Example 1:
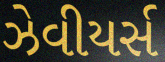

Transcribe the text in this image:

ઝેવીયર્સ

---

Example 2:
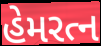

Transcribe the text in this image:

હેમરત્ન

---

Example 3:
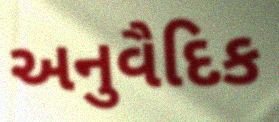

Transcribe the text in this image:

અનુવૈદિક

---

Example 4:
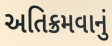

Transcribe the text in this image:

અતિક્રમવાનું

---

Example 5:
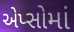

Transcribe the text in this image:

એપ્સોમાં